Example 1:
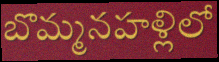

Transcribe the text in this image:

బొమ్మనహళ్లిలో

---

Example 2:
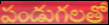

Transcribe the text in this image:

పండుగలతో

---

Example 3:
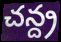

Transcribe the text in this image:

చన్ద్ర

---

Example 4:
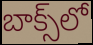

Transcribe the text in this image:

బాక్స్‌లో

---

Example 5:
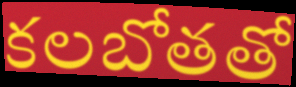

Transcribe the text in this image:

కలబోతతో